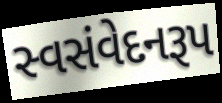
સ્વસંવેદનરૂપ